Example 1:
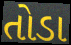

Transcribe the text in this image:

તોડા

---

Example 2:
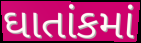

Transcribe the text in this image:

ઘાતાંકમાં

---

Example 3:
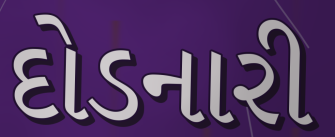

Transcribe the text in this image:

દોડનારી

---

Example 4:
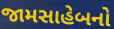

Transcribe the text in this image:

જામસાહેબનો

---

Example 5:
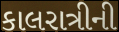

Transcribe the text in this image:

કાલરાત્રીની